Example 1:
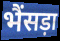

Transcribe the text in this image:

भैंसड़ा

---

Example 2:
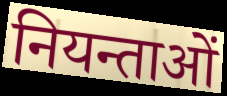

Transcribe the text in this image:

नियन्ताओं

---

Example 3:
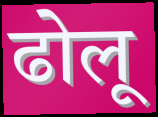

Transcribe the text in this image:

ढोलू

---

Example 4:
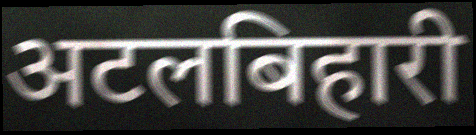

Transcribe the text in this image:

अटलबिहारी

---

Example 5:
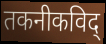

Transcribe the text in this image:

तकनीकविद्